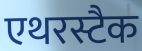
एथरस्टैक